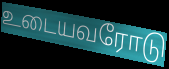
உடையவரோடு